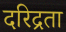
दरिद्रता